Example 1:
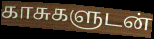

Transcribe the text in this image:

காசுகளுடன்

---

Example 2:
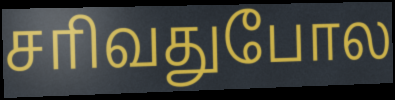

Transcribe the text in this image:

சரிவதுபோல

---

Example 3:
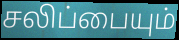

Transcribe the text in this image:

சலிப்பையும்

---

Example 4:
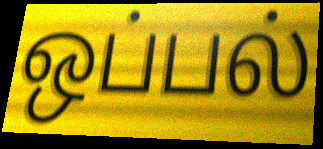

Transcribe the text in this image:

ஒப்பல்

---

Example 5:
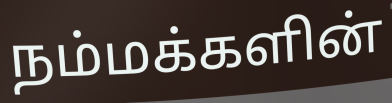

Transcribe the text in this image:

நம்மக்களின்